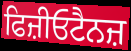
ਫਿਜ਼ੀਓਟੈਨਜ਼